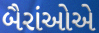
બૈરાંઓએ